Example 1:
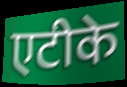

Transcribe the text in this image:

एटीके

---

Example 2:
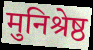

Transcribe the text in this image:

मुनिश्रेष्ठ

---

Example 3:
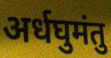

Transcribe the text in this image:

अर्धघुमंतु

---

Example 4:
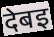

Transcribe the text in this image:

देबइ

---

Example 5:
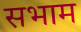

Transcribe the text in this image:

सभाम